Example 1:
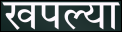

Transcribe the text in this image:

खपल्या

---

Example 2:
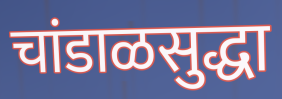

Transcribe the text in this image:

चांडाळसुद्धा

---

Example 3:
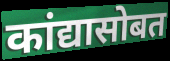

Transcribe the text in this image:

कांद्यासोबत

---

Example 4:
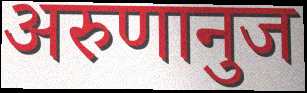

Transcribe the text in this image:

अरुणानुज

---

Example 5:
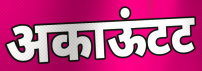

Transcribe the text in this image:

अकाऊंटट